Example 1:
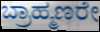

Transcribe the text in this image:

ಬ್ರಾಹ್ಮಣರೇ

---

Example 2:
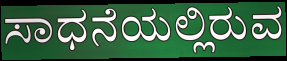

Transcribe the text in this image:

ಸಾಧನೆಯಲ್ಲಿರುವ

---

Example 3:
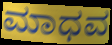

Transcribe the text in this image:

ಮಾಧವ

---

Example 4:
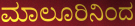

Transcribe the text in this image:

ಮಾಲೂರಿನಿಂದ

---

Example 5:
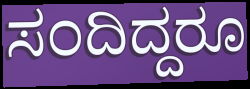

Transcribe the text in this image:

ಸಂದಿದ್ದರೂ